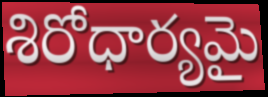
శిరోధార్యమై